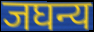
जघन्‍य